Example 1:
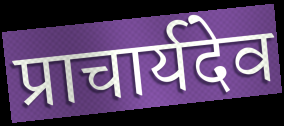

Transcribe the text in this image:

प्राचार्यदेव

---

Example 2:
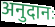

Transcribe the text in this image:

अनुदानः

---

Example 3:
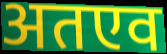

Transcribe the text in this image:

अतएव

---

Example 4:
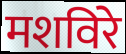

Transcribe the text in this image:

मशविरे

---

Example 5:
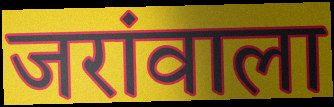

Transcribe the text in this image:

जरांवाला